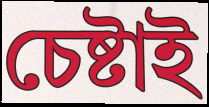
চেষ্টাই